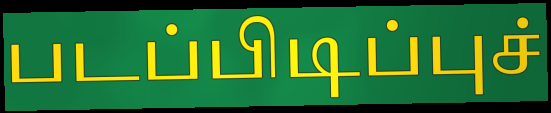
படப்பிடிப்புச்